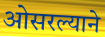
ओसरल्याने